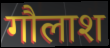
गौलाश